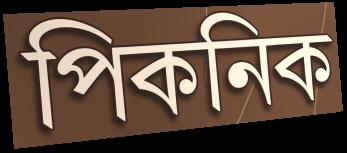
পিকনিক